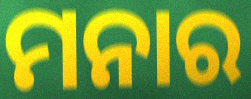
ମନାର